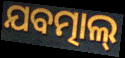
ଯବତ୍ମାଲ୍